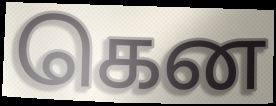
கென